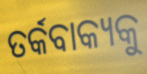
ତର୍କବାକ୍ୟକୁ